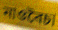
নাওবৈচা